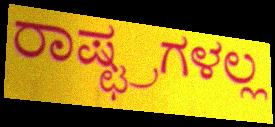
ರಾಷ್ಟ್ರಗಳಲ್ಲ